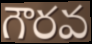
గౌరవ